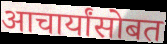
आचार्यांसोबत